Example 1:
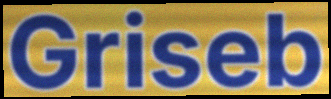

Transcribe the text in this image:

Griseb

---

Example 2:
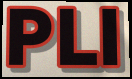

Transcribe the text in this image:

PLI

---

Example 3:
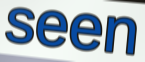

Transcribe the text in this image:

seen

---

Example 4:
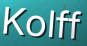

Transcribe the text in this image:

Kolff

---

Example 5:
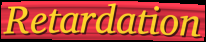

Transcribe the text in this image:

Retardation